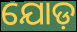
ଯୋଡ଼